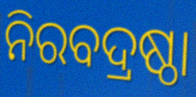
ନିରବଦ୍ରଷ୍ଠା